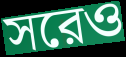
সরেও